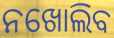
ନଖୋଲିବ